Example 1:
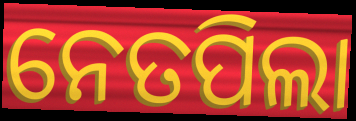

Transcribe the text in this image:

ନେତପିଲା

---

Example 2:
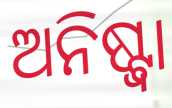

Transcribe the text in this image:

ଅନିଷ୍ଟ୍ୱା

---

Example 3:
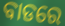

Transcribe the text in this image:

ବାଡରେ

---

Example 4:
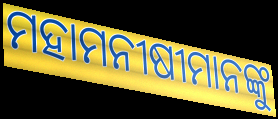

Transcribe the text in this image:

ମହାମନୀଷୀମାନଙ୍କୁ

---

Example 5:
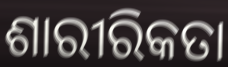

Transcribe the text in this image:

ଶାରୀରିକତା